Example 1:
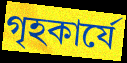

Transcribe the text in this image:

গৃহকার্যে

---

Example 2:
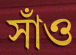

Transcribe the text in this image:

সাঁও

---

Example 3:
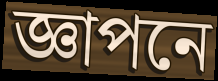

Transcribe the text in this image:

জ্ঞাপনে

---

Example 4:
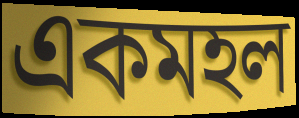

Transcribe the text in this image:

একমহল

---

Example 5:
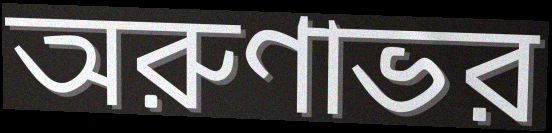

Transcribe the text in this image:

অরুণাভর